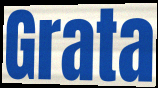
Grata